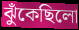
ঝুঁকেছিলো